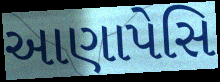
આણાપેસિ